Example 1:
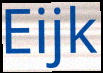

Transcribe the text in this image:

Eijk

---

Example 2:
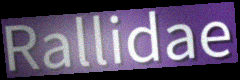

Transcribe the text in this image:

Rallidae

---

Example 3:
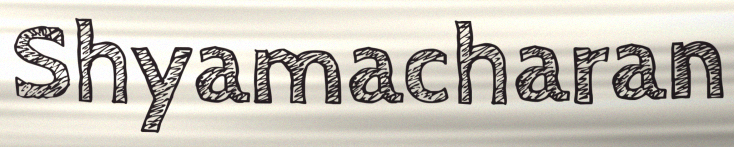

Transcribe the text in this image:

Shyamacharan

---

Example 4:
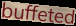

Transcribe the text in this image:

buffeted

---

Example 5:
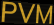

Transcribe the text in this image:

PVM